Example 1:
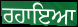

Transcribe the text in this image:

ਰਹਾਇਆ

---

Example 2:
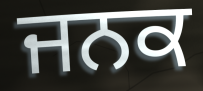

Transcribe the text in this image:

ਜਨਕ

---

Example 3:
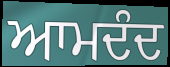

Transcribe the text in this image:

ਆਮਦੰਦ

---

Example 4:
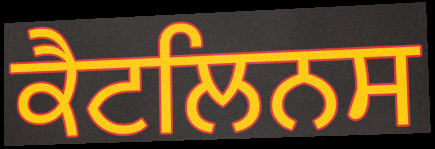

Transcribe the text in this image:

ਕੈਟਲਿਨਸ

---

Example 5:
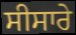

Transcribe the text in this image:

ਸੀਸਾਰੇ